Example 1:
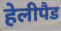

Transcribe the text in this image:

हेलीपैड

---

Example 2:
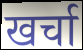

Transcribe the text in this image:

खर्चा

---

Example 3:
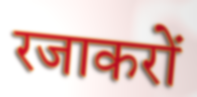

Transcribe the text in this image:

रजाकरों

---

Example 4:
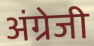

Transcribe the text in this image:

अंग्रेजी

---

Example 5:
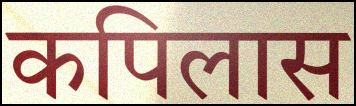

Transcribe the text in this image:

कपिलास